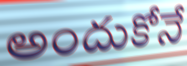
అందుకోనే